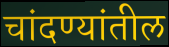
चांदण्यांतील